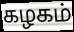
கழகம்